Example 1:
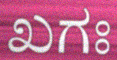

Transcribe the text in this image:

ಖಗಃ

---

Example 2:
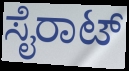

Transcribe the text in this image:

ಸೈರಾಟ್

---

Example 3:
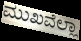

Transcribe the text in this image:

ಮುಖವೆಲ್ಲಾ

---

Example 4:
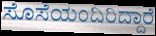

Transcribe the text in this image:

ಸೊಸೆಯಂದಿರಿದ್ದಾರೆ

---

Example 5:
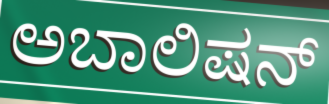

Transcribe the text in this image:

ಅಬಾಲಿಷನ್